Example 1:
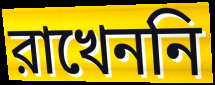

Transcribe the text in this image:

রাখেননি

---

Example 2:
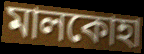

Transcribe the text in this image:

মালকোহা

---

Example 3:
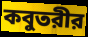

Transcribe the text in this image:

কবুতরীর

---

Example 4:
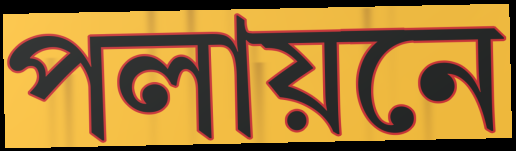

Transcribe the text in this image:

পলায়নে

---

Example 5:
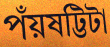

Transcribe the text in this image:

পঁয়ষট্টিটা